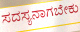
ಸದಸ್ಯನಾಗಬೇಕು